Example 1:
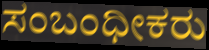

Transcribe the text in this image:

ಸಂಬಂಧೀಕರು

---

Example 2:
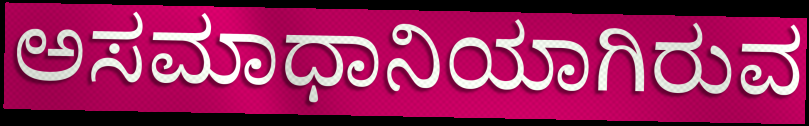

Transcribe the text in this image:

ಅಸಮಾಧಾನಿಯಾಗಿರುವ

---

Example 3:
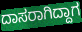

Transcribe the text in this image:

ದಾಸರಾಗಿದ್ದಾಗ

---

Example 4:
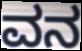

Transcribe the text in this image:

ವನ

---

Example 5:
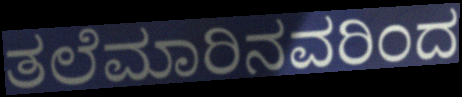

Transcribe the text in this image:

ತಲೆಮಾರಿನವರಿಂದ